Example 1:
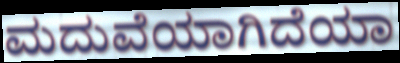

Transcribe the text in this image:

ಮದುವೆಯಾಗಿದೆಯಾ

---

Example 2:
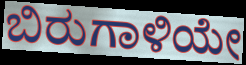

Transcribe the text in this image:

ಬಿರುಗಾಳಿಯೇ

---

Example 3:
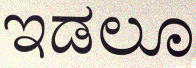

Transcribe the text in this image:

ಇಡಲೂ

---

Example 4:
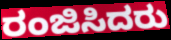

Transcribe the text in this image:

ರಂಜಿಸಿದರು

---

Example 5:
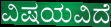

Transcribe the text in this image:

ವಿಷಯವಿದೆ